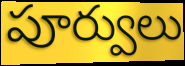
పూర్వులు